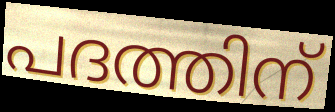
പദത്തിന്